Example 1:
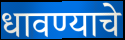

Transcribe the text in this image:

धावण्याचे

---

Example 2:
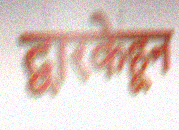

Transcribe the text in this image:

द्वारकेहून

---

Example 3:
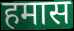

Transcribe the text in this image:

हमास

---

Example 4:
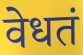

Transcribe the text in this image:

वेधतं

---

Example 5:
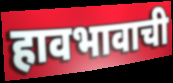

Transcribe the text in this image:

हावभावाची